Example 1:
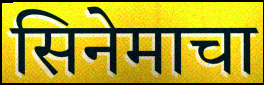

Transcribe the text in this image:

सिनेमाचा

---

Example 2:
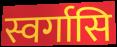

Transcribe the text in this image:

स्वर्गासि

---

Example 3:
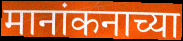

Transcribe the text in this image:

मानांकनाच्या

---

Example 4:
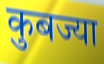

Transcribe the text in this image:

कुबज्या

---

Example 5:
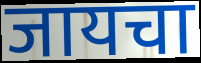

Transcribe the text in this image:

जायचा